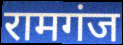
रामगंज